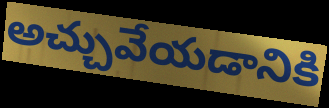
అచ్చువేయడానికి